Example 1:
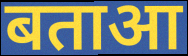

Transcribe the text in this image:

बताआ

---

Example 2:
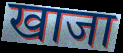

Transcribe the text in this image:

खाजा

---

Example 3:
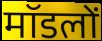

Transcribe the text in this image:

मॉडलों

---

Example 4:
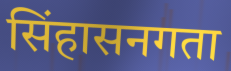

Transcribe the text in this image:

सिंहासनगता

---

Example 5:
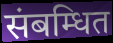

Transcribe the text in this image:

संबम्धित